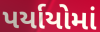
પર્યાયોમાં